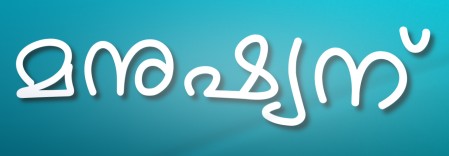
മനുഷ്യന്